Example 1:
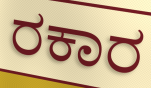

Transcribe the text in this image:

ರಕಾರ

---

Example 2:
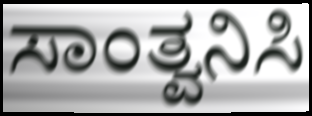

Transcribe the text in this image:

ಸಾಂತ್ವನಿಸಿ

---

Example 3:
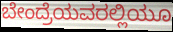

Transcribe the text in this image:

ಬೇಂದ್ರೆಯವರಲ್ಲಿಯೂ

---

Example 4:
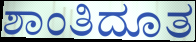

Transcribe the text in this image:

ಶಾಂತಿದೂತ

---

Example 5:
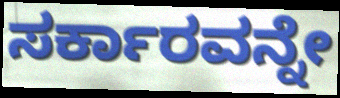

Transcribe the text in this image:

ಸರ್ಕಾರವನ್ನೇ